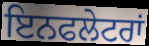
ਇਨਫਲੇਟਰਾਂ